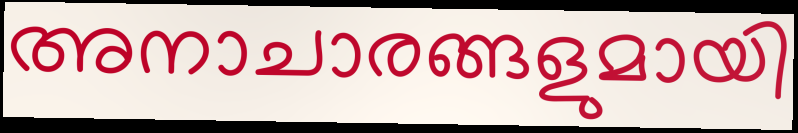
അനാചാരങ്ങളുമായി